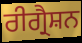
ਰੀਗ੍ਰੈਸ਼ਨ